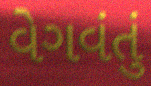
વેગવંતું